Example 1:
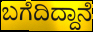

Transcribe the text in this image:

ಬಗೆದಿದ್ದಾನೆ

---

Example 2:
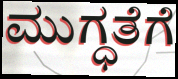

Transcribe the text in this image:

ಮುಗ್ಧತೆಗೆ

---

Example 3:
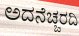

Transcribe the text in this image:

ಅದನೆಚ್ಚರದಿ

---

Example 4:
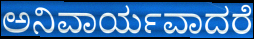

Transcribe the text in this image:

ಅನಿವಾರ್ಯವಾದರೆ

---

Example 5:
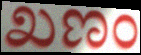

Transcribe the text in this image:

ಖಣಂ